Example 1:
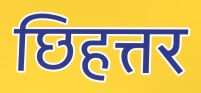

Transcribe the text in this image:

छिहत्तर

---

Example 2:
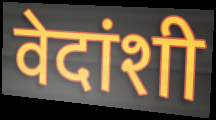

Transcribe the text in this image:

वेदांशी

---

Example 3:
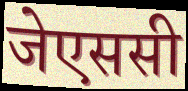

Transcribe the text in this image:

जेएससी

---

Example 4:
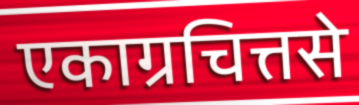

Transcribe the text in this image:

एकाग्रचित्तसे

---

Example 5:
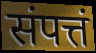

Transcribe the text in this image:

संपत्तं